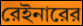
রেইনারের